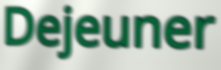
Dejeuner